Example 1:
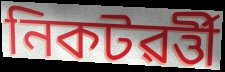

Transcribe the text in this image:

নিকটৱৰ্ত্তী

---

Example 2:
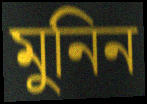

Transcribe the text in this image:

মুনিন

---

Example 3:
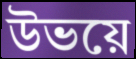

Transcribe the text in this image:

উভয়ে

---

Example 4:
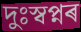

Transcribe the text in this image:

দুঃস্বপ্নৰ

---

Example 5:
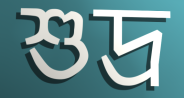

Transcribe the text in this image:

শুদ্ৰ